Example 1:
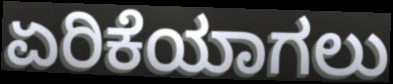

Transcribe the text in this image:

ಏರಿಕೆಯಾಗಲು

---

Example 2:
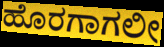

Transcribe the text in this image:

ಹೊರಗಾಗಲೀ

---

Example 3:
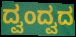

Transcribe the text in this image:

ದ್ವಂದ್ವದ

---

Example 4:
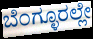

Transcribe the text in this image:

ಬೆಂಗ್ಳೂರಲ್ಲೇ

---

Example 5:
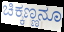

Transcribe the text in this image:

ಚಿಕ್ಕಣ್ಣನೂ